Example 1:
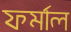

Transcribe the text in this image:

ফর্মাল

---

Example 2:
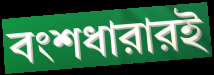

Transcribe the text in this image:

বংশধারারই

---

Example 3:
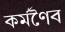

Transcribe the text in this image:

কর্মণৈব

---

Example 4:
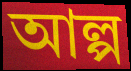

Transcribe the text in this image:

আল্প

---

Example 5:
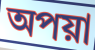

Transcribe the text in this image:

অপয়া